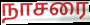
நாசரை